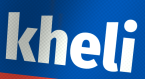
kheli